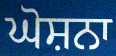
ਘੋਸ਼ਨਾ